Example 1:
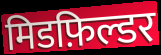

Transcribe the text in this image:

मिडफ़िल्डर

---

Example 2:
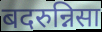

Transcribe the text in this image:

बदरुन्निसा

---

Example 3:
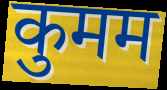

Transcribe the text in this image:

कुमम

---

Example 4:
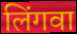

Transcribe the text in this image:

लिंगवा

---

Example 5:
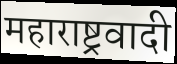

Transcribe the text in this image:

महाराष्ट्रवादी